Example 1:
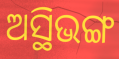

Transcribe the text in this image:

ଅସ୍ଥିଭଙ୍ଗ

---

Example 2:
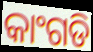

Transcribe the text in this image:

କାଂଗଡି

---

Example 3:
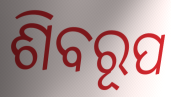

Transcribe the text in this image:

ଶିବରୂପ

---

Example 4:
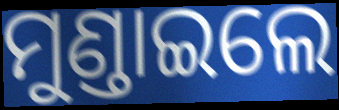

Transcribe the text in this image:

ମୁଣ୍ଡାଇଲେ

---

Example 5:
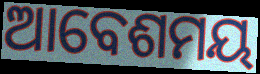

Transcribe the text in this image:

ଆବେଶମୟ